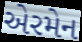
એરમેન